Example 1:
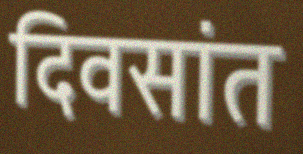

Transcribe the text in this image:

दिवसांत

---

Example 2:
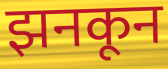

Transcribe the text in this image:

झनकून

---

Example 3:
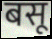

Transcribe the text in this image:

बसू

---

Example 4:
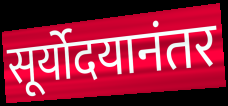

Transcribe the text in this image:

सूर्योदयानंतर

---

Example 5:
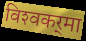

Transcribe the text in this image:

विश्वकर्मा